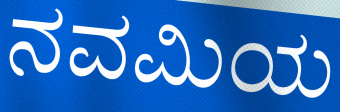
ನವಮಿಯ